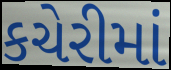
કચેરીમાં